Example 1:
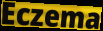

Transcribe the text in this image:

Eczema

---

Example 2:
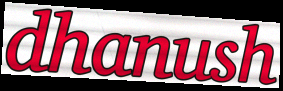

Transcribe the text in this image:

dhanush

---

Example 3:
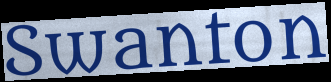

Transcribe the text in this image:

Swanton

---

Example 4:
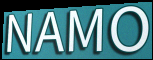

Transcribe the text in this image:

NAMO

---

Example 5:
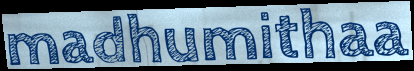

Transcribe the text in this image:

madhumithaa